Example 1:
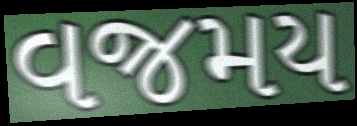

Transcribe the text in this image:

વજ્રમય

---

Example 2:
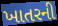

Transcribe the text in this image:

ખાતરની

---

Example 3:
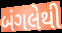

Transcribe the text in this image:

બંગલેથી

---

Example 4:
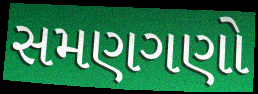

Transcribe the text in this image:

સમણગણો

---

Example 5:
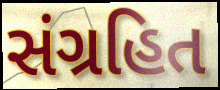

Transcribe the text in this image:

સંગ્રહિત